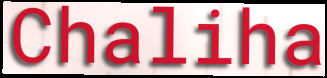
Chaliha